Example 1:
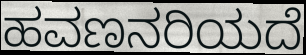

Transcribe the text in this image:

ಹವಣನರಿಯದೆ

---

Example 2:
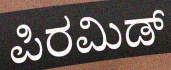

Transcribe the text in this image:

ಪಿರಮಿಡ್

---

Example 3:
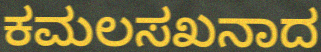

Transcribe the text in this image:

ಕಮಲಸಖನಾದ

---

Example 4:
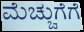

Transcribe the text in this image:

ಮೆಚ್ಚುಗೆಗೆ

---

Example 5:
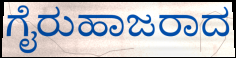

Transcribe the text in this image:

ಗೈರುಹಾಜರಾದ